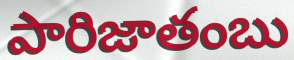
పారిజాతంబు